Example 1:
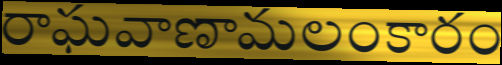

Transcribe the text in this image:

రాఘవాణామలంకారం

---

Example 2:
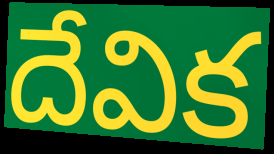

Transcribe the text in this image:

దేవిక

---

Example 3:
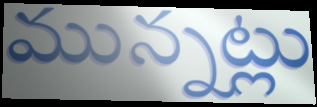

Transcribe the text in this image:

మున్నట్లు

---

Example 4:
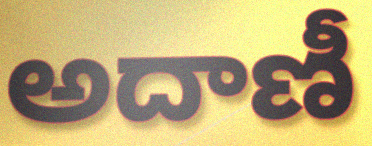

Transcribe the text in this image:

అదాణీ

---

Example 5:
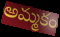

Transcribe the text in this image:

అమ్మకం